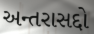
અન્તરાસદ્દો